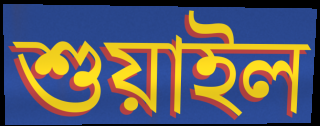
শুয়াইল